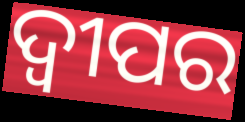
ଦ୍ଵୀପର